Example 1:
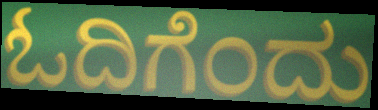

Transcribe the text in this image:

ಓದಿಗೆಂದು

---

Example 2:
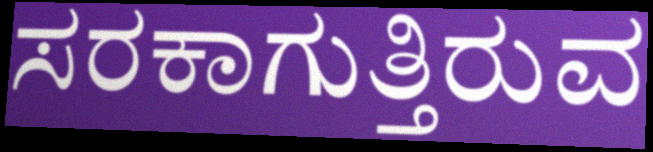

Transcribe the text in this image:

ಸರಕಾಗುತ್ತಿರುವ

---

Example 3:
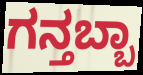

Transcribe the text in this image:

ಗನ್ತಬ್ಬಾ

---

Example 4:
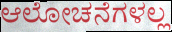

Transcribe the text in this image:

ಆಲೋಚನೆಗಳಲ್ಲ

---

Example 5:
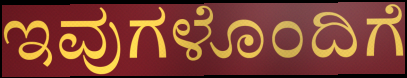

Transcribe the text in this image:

ಇವುಗಳೊಂದಿಗೆ